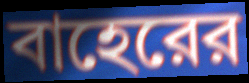
বাহেরের